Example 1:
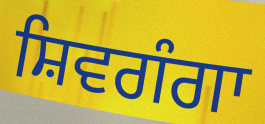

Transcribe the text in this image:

ਸ਼ਿਵਗੰਗਾ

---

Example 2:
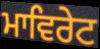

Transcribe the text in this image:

ਮਾਵਿਰੇਟ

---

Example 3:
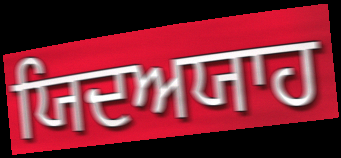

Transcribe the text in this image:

ਯਿਦਅਯਾਹ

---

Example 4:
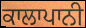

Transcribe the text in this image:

ਕਾਲਾਪਾਨੀ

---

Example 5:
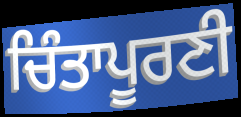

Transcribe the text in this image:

ਚਿੰਤਾਪੂਰਣੀ